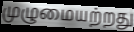
முழுமையற்றது